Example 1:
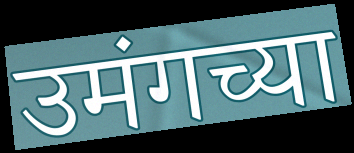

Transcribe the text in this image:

उमंगच्या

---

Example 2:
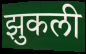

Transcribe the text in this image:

झुकली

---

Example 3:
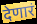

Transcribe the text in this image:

देणारं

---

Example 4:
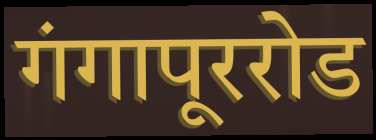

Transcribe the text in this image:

गंगापूररोड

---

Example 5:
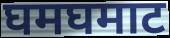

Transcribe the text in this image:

घमघमाट